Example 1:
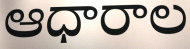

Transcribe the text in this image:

ఆధారాల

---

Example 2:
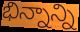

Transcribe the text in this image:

భిన్నాన్ని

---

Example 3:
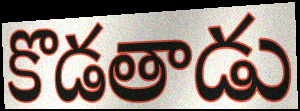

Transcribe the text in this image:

కొడతాడు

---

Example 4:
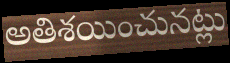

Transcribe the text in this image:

అతిశయించునట్లు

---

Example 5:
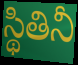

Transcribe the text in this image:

స్థితినీ